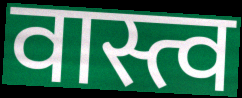
वास्त्व